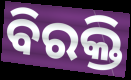
ବିରକ୍ତି